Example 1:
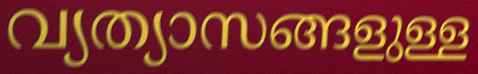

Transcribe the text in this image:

വ്യത്യാസങ്ങളുള്ള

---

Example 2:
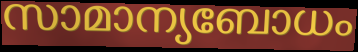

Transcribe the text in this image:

സാമാന്യബോധം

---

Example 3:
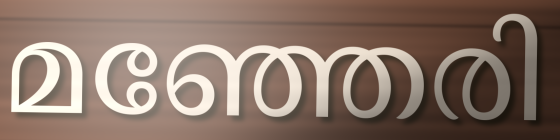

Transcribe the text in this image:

മഞ്ഞേരി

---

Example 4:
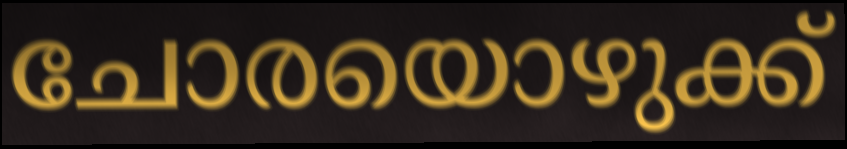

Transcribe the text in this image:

ചോരയൊഴുക്ക്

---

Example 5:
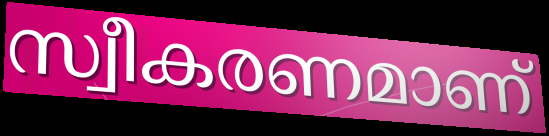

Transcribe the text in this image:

സ്വീകരണമാണ്